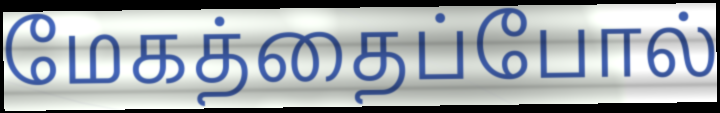
மேகத்தைப்போல்